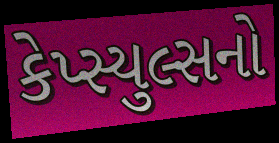
કેપ્સ્યુલ્સનો